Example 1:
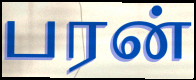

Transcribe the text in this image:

பரன்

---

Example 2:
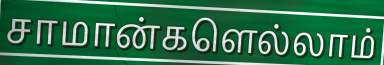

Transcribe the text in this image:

சாமான்களெல்லாம்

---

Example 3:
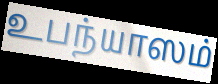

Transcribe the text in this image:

உபந்யாஸம்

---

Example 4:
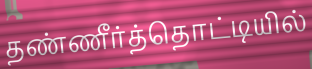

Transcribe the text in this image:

தண்ணீர்த்தொட்டியில்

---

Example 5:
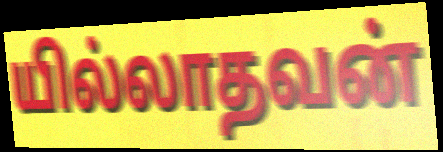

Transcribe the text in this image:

யில்லாதவன்